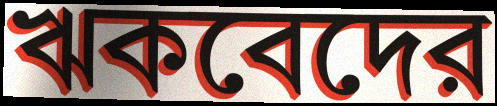
ঋকবেদের